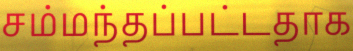
சம்மந்தப்பட்டதாக